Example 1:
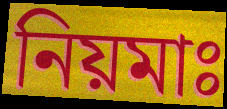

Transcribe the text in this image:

নিয়মাঃ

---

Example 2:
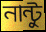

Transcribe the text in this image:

নান্টু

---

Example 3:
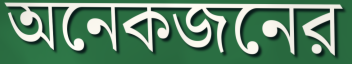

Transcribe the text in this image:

অনেকজনের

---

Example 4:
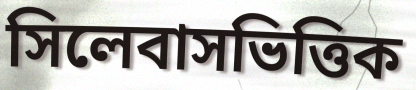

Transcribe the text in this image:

সিলেবাসভিত্তিক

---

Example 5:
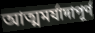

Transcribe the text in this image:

আত্মমর্যাদাপূর্ণ